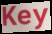
Key